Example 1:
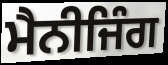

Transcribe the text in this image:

ਮੈਨੀਜਿੰਗ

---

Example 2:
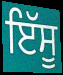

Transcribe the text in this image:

ਇੱਸੂ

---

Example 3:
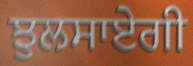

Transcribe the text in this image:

ਝੁਲਸਾਏਗੀ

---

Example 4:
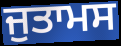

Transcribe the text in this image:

ਜੁਤਾਮਸ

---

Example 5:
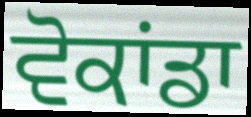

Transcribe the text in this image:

ਵੋਕਾਂਡਾ